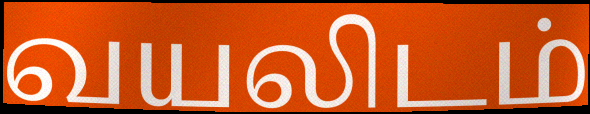
வயலிடம்